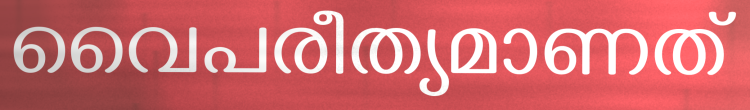
വൈപരീത്യമാണത്